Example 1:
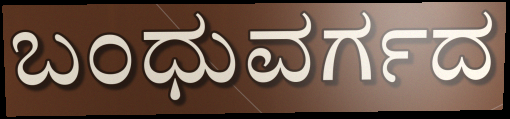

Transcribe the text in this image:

ಬಂಧುವರ್ಗದ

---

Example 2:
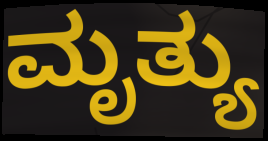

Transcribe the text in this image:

ಮೃತ್ಯು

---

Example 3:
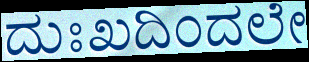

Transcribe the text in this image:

ದುಃಖದಿಂದಲೇ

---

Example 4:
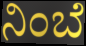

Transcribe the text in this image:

ನಿಂಬೆ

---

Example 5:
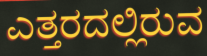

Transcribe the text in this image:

ಎತ್ತರದಲ್ಲಿರುವ